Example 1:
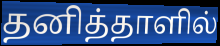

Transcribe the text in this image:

தனித்தாளில்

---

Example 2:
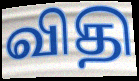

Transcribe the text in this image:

விதி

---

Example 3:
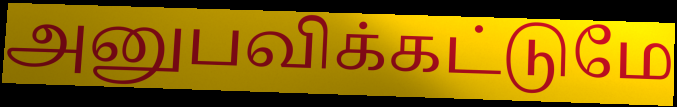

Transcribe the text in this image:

அனுபவிக்கட்டுமே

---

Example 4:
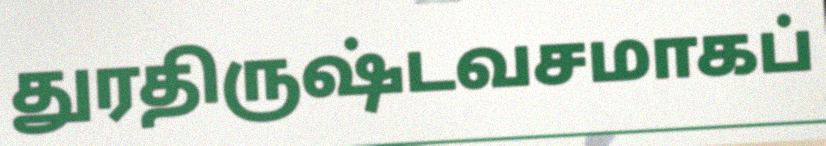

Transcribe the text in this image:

துரதிருஷ்டவசமாகப்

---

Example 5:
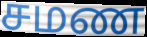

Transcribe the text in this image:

சமண